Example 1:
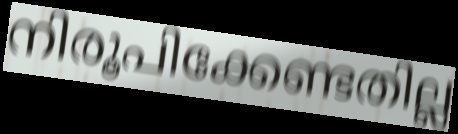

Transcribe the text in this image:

നിരൂപിക്കേണ്ടതില്ല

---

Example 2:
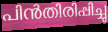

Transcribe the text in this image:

പിൻതിരിപ്പിച്ചു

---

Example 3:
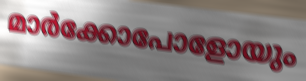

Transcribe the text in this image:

മാർക്കോപോളോയും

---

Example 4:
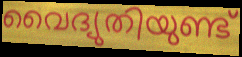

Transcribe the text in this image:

വൈദ്യുതിയുണ്ട്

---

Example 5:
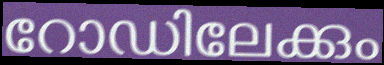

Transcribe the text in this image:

റോഡിലേക്കും